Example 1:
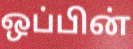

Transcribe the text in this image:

ஒப்பின்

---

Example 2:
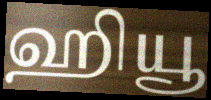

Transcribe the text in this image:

ஹியூ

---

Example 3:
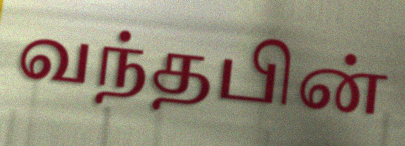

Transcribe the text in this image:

வந்தபின்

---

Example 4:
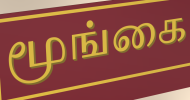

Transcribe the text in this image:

மூங்கை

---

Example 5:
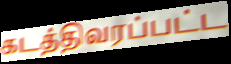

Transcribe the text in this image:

கடத்திவரப்பட்ட